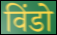
विंडो